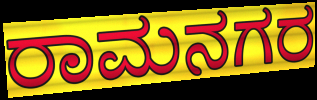
ರಾಮನಗರ